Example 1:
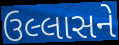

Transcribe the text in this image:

ઉલ્લાસને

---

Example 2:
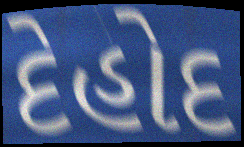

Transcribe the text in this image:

દેહોદ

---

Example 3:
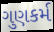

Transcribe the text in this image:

ગુણકર્મ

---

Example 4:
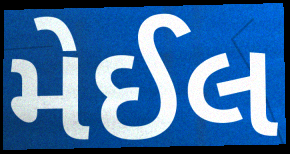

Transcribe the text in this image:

મેઈલ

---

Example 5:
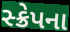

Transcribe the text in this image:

સ્ક્રેપના